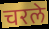
चरले